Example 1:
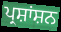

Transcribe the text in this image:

ਪ੍ਰਸ਼ਾਂਸ਼ਨ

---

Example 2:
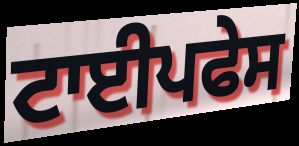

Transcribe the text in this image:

ਟਾਈਪਫੇਸ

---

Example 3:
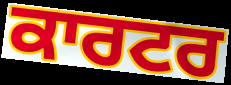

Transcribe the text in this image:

ਕਾਰਟਰ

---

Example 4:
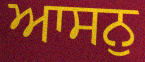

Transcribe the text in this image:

ਆਸਨੁ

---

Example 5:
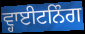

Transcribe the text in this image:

ਵ੍ਹਾਈਟਨਿੰਗ